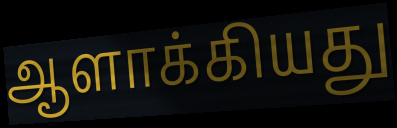
ஆளாக்கியது